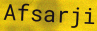
Afsarji